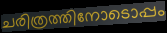
ചരിത്രത്തിനോടൊപ്പം